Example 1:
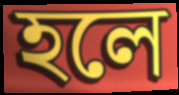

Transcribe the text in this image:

হলে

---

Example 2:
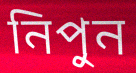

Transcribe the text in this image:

নিপুন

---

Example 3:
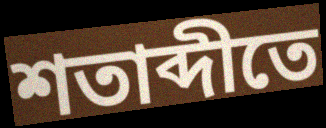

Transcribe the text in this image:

শতাব্দীতে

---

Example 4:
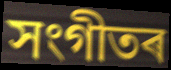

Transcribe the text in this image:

সংগীতৰ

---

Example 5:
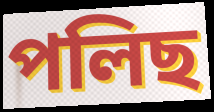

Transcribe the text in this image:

পলিছ